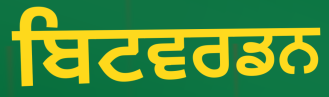
ਬਿਟਵਰਡਨ